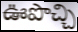
ఊపొచ్చి